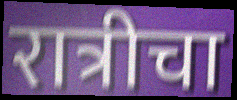
रात्रीचा